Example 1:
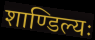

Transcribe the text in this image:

शाण्डिल्यः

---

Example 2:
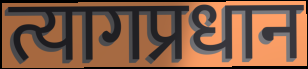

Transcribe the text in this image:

त्यागप्रधान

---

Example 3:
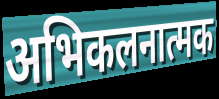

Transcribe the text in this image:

अभिकलनात्मक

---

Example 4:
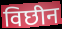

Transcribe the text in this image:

विछीन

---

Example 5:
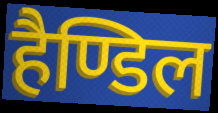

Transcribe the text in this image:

हैण्डिल